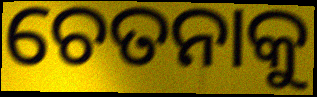
ଚେତନାକୁ